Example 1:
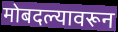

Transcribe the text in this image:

मोबदल्यावरून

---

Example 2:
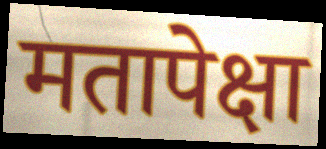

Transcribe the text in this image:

मतापेक्षा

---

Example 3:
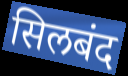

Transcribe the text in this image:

सिलबंद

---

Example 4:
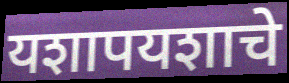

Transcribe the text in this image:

यशापयशाचे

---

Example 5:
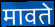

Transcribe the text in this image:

मावते